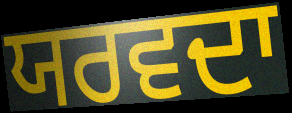
ਯਰਵਦਾ